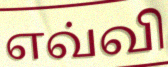
எவ்வி